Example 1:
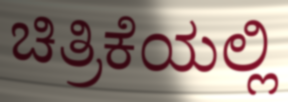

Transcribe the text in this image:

ಚಿತ್ರಿಕೆಯಲ್ಲಿ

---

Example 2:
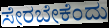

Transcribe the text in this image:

ಸೇರಬೇಕೆಂದು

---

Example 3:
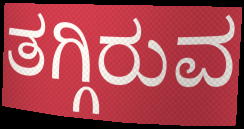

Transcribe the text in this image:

ತಗ್ಗಿರುವ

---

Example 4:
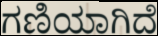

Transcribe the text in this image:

ಗಣಿಯಾಗಿದೆ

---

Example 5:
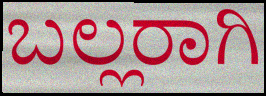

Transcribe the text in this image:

ಬಲ್ಲರಾಗಿ